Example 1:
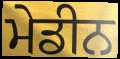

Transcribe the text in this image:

ਮੇਡੀਨ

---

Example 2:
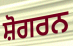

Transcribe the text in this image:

ਸ਼ੋਗਰਨ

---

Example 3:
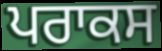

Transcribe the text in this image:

ਪਰਾਕਸ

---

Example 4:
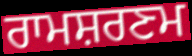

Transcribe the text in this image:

ਰਾਮਸ਼ਰਣਮ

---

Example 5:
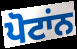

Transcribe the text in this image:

ਪੋਟਾਂਨ